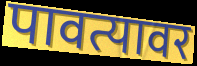
पावत्यावर